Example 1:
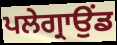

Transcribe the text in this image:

ਪਲੇਗ੍ਰਾਉਂਡ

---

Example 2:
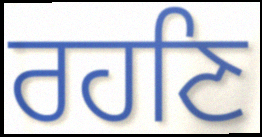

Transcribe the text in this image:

ਰਹਣਿ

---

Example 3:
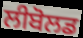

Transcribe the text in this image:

ਲੀਬੋਲਡ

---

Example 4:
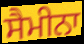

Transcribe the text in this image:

ਸੈਮੀਨਾ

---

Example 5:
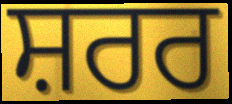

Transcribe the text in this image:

ਸ਼ਰਰ